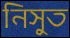
নিসুত